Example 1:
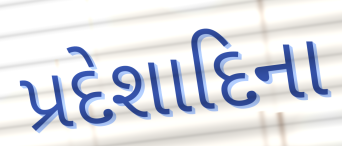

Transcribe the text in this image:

પ્રદેશાદિના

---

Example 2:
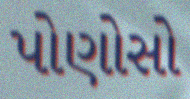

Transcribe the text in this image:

પોણોસો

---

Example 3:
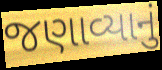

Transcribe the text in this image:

જણાવ્યાનું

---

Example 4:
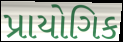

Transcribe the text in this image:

પ્રાયોગિક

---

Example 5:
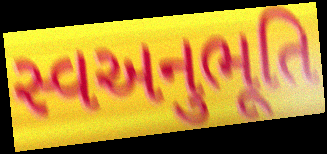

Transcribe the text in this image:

સ્વઅનુભૂતિ